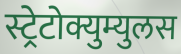
स्ट्रेटोक्युम्युलस